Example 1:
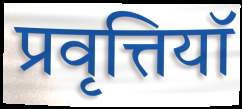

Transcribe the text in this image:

प्रवृत्तियॉ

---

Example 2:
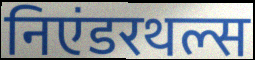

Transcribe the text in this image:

निएंडरथल्स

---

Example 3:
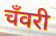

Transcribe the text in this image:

चँवरी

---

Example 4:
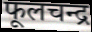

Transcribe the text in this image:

फूलचन्द्र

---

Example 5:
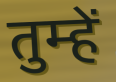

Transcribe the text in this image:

तुम्हें